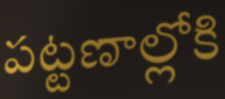
పట్టణాల్లోకి